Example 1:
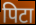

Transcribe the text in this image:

पिटा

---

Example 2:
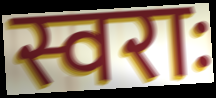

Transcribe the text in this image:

स्वराः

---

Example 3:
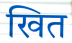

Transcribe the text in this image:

खित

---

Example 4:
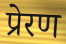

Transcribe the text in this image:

प्रेरण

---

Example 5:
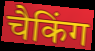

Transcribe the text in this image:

चैकिंग